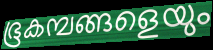
ഭൂകമ്പങ്ങളെയും